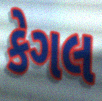
કેગલ